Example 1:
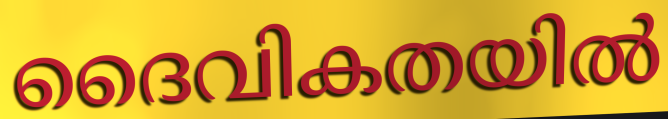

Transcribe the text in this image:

ദൈവികതയിൽ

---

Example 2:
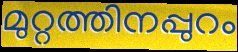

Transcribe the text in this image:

മുറ്റത്തിനപ്പുറം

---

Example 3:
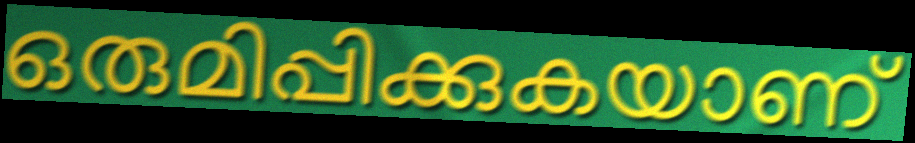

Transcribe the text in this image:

ഒരുമിപ്പിക്കുകയാണ്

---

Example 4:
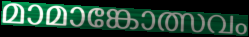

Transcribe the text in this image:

മാമാങ്കോത്സവം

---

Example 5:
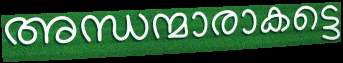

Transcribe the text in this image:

അന്ധന്മാരാകട്ടെ